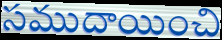
సముదాయించి